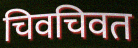
चिवचिवत